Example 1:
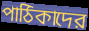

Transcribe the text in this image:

পাঠিকাদের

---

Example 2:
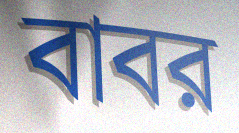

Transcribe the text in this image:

বাবর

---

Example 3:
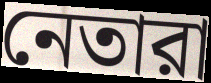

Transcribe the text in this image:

নেতারা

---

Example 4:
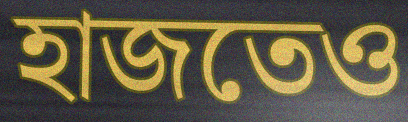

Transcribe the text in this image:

হাজতেও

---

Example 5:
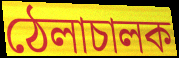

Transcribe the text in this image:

ঠেলাচালক